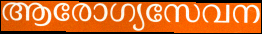
ആരോഗ്യസേവന